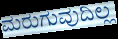
ಮರುಗುವುದಿಲ್ಲ